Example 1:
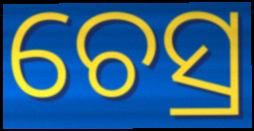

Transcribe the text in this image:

ଚେସ୍ର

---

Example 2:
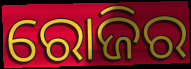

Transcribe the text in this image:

ରୋଜିର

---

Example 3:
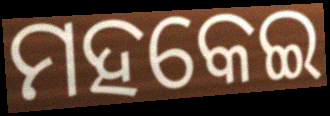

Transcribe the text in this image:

ମହକେଇ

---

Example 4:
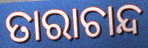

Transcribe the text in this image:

ତାରାଚାନ୍ଦ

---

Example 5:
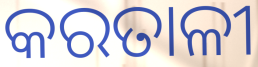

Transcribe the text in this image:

କରତାଳୀ